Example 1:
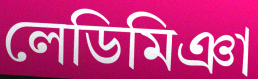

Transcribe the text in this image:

লেডিমিঞা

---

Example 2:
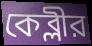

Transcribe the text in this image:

কেব্লীর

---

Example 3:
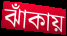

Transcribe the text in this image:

ঝাঁকায়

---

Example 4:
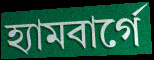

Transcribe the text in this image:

হ্যামবার্গে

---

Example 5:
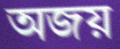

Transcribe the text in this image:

অজয়